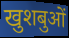
खुशबुओं